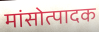
मांसोत्पादक